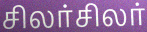
சிலர்சிலர்